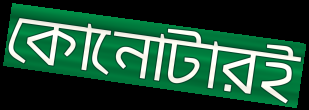
কোনোটারই